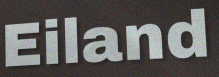
Eiland